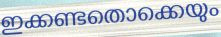
ഇക്കണ്ടതൊക്കെയും